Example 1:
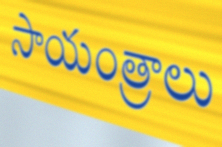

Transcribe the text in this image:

సాయంత్రాలు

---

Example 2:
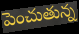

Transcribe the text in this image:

పెంచుతున్న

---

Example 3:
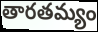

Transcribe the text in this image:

తారతమ్యం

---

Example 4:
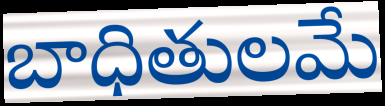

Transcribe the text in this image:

బాధితులమే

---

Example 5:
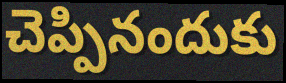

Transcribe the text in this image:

చెప్పినందుకు